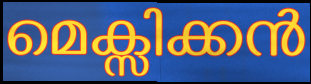
മെക്സിക്കൻ